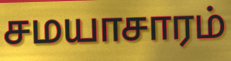
சமயாசாரம்